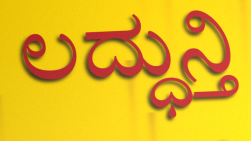
ಲದ್ಧುನ್ತಿ